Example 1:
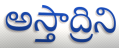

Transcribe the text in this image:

అస్తాద్రిని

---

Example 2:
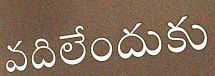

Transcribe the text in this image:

వదిలేందుకు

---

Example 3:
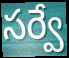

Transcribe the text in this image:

సర్వే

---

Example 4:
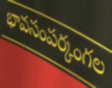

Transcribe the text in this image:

భావసంపర్కంగల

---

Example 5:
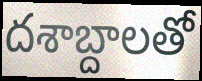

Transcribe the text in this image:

దశాబ్దాలతో